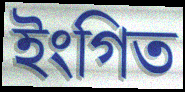
ইংগিত